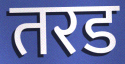
तरड